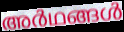
അർഥങ്ങൾ